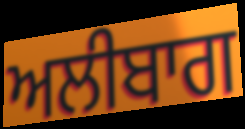
ਅਲੀਬਾਗ